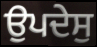
ਉਪਦੇਸੁ